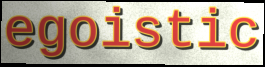
egoistic